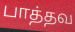
பாத்தவ